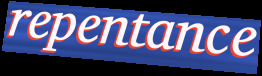
repentance